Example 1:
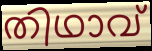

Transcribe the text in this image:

തിഥാവ്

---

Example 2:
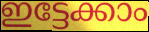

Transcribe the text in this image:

ഇട്ടേക്കാം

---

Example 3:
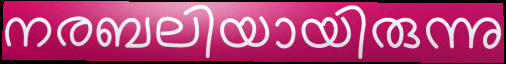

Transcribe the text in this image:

നരബലിയായിരുന്നു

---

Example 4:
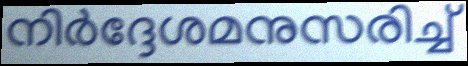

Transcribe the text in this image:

നിർദ്ദേശമനുസരിച്ച്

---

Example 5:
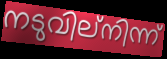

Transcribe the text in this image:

നടുവില്നിന്ന്